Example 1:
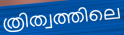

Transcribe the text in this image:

ത്രിത്വത്തിലെ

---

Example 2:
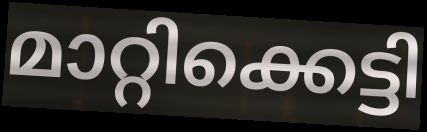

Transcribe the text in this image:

മാറ്റിക്കെട്ടി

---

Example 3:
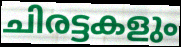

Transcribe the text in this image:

ചിരട്ടകളും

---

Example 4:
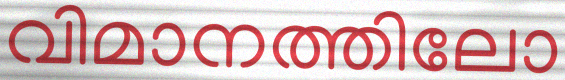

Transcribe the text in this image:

വിമാനത്തിലോ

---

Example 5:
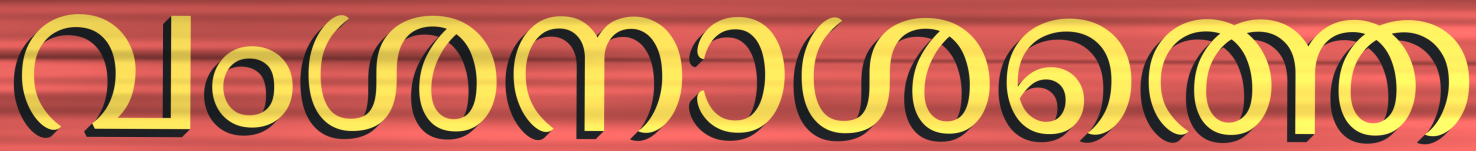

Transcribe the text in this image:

വംശനാശത്തെ